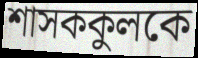
শাসককুলকে